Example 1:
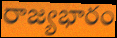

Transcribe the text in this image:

రాజ్యభారం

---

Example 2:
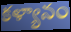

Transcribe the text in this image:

కళ్యానం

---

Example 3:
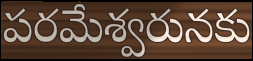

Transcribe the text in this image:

పరమేశ్వరునకు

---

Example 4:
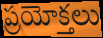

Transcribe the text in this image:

ప్రయోక్తలు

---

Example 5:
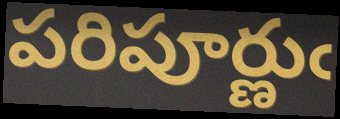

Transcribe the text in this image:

పరిపూర్ణుఁ